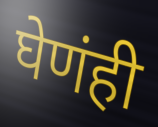
घेणंही